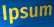
Ipsum